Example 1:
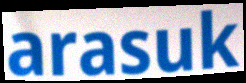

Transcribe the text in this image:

arasuk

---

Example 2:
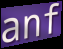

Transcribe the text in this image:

anf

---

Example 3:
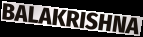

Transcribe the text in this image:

BALAKRISHNA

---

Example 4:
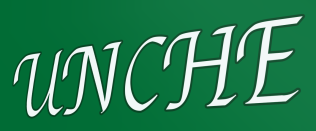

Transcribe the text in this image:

UNCHE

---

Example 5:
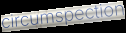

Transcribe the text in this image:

circumspection